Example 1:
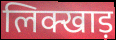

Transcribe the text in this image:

लिक्खाड़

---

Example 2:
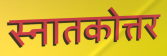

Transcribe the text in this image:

स्नातकोत्तर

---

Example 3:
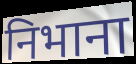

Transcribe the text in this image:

निभाना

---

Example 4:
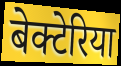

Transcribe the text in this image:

बेक्टेरिया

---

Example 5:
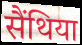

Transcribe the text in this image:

सैंथिया